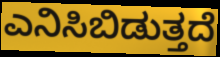
ಎನಿಸಿಬಿಡುತ್ತದೆ